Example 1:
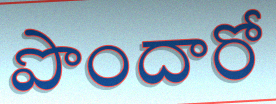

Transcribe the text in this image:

పొందారో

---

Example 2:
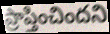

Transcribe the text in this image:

ప్రాప్తించిందని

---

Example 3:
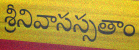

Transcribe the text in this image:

శ్రీనివాసస్సతాం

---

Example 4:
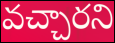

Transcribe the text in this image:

వచ్చారని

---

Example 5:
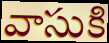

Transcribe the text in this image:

వాసుకి